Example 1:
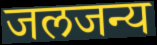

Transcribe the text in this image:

जलजन्य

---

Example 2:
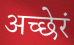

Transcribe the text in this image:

अच्छेरं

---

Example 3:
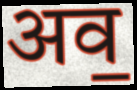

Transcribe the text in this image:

अव॒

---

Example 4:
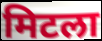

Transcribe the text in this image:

मिटला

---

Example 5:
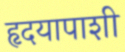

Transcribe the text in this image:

हृदयापाशी